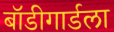
बॉडीगार्डला